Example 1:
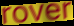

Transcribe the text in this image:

rover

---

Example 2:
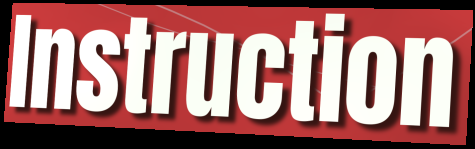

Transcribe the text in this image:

Instruction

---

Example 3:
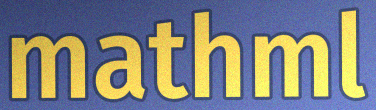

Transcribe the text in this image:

mathml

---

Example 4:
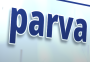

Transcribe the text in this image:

parva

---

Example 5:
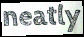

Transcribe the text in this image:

neatly